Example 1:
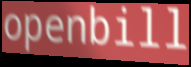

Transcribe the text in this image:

openbill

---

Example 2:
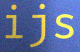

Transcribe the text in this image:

ijs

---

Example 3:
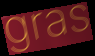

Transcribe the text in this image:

gras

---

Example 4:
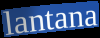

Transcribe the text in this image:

lantana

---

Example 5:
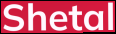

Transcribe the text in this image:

Shetal